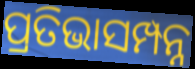
ପ୍ରତିଭାସମ୍ପନ୍ନ